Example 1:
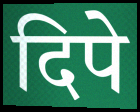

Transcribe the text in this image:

दिपे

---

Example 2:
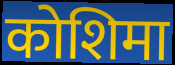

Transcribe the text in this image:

कोशिमा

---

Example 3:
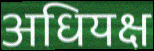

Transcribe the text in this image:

अधियक्ष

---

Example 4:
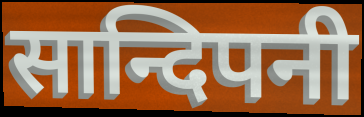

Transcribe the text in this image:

सान्दिपनी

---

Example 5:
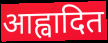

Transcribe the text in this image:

आह्वादित